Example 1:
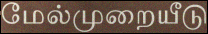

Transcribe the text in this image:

மேல்முறையீடு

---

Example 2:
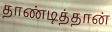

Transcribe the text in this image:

தாண்டித்தான்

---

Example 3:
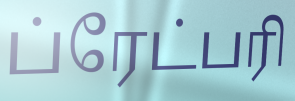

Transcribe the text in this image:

ப்ரேட்பரி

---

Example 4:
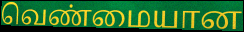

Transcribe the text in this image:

வெண்மையான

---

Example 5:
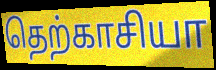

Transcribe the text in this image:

தெற்காசியா